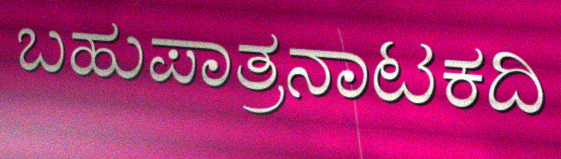
ಬಹುಪಾತ್ರನಾಟಕದಿ